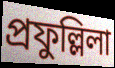
প্রফুল্লিলা